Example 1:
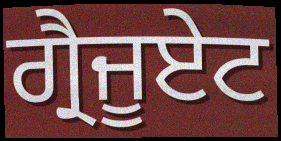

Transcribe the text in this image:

ਗ੍ਰੈਜੂਏਟ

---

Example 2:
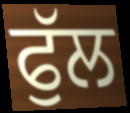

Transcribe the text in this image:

ਫੁੱਲ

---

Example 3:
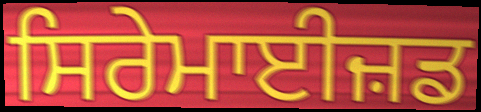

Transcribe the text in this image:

ਸਿਰੇਮਾਈਜ਼ਡ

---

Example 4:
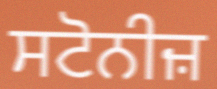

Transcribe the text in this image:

ਸਟੋਨੀਜ਼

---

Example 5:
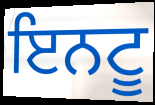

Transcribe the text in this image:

ਇਨਟੂ